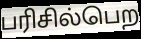
பரிசில்பெற